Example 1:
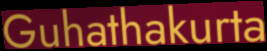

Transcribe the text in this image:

Guhathakurta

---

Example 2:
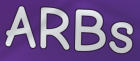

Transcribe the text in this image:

ARBs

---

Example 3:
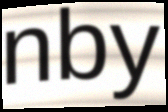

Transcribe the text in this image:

nby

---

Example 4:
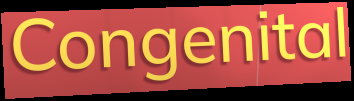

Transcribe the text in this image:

Congenital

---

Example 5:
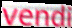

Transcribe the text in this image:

vendi